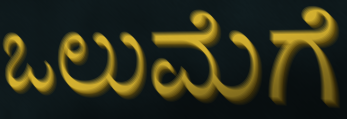
ಒಲುಮೆಗೆ